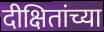
दीक्षितांच्या